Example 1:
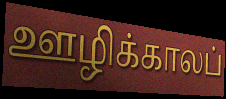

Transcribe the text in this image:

ஊழிக்காலப்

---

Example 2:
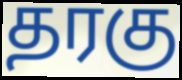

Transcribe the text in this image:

தரகு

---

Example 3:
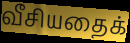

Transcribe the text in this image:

வீசியதைக்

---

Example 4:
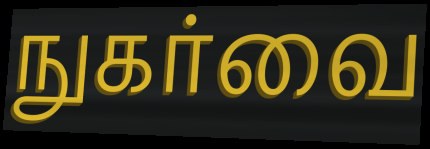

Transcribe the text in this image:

நுகர்வை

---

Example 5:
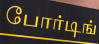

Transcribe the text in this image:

போர்டிங்